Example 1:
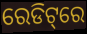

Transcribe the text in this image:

ରେଡିଟ୍‌ରେ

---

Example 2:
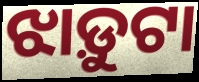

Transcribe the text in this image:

ଝାଡ଼ୁଟା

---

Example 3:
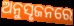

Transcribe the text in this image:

ଅନୁସୃଜନରେ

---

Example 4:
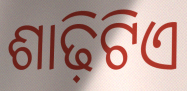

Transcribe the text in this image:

ଶାଢ଼ିଟିଏ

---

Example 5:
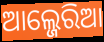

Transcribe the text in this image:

ଆଲ୍ଜେରିଆ